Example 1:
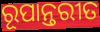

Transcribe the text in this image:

ରୂପାନ୍ତରୀତ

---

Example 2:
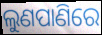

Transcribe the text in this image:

ଲୁଣପାଣିରେ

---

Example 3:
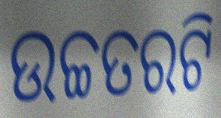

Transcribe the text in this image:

ଉଚ୍ଚତରଟି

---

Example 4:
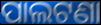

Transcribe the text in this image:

ପାଲଟଣା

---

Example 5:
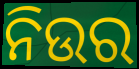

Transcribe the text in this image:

ନିଉର